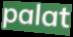
palat